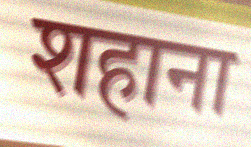
शहाना